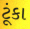
ટૂંકા